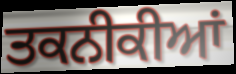
ਤਕਨੀਕੀਆਂ